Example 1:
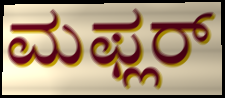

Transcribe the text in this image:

ಮಫ್ಲರ್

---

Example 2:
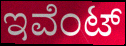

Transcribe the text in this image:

ಇವೆಂಟ್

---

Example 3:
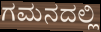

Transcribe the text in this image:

ಗಮನದಲ್ಲಿ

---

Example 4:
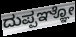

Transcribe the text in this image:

ದುಪ್ಪಞ್ಞೋ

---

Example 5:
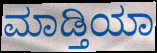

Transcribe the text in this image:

ಮಾಡ್ತಿಯಾ